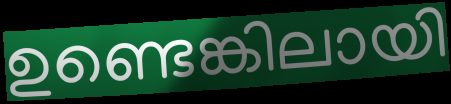
ഉണ്ടെങ്കിലായി